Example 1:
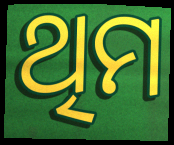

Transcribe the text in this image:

ଥିମ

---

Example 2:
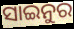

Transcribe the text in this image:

ସାଇନୁର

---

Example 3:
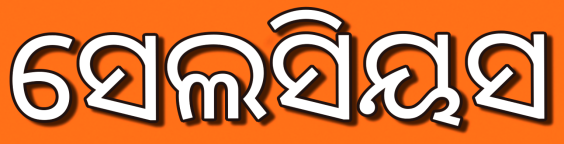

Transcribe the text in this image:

ସେଲସିୟସ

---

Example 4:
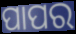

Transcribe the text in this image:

ପାପର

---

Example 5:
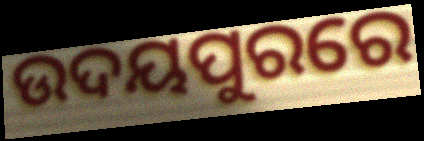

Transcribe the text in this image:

ଉଦୟପୁରରେ